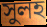
সুলহ